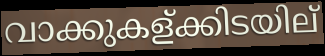
വാക്കുകള്ക്കിടയില്